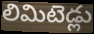
లిమిటెడ్లు